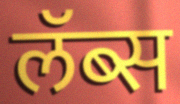
लॅब्स